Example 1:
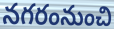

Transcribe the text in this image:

నగరంనుంచి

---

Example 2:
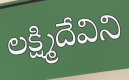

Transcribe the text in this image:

లక్ష్మిదేవిని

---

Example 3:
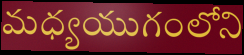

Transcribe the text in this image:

మధ్యయుగంలోని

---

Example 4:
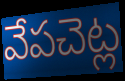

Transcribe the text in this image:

వేపచెట్ల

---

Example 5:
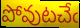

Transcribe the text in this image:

పోవుటచేఁ